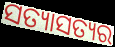
ସତ୍ୟାସତ୍ୟର